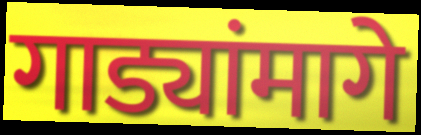
गाड्यांमागे